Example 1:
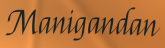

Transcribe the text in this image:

Manigandan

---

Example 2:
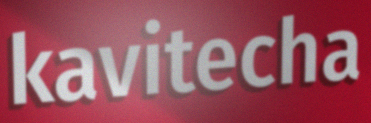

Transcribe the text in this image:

kavitecha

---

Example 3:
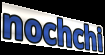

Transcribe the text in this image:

nochchi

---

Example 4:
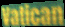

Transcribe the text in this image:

Vatican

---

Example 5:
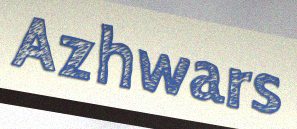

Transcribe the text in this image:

Azhwars